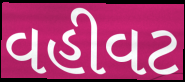
વહીવટ